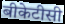
बीकेटीसी